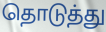
தொடுத்து